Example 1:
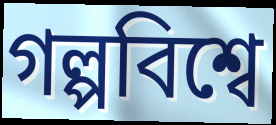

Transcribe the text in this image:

গল্পবিশ্বে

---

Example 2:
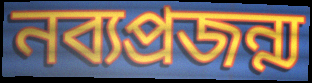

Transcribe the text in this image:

নব্যপ্রজন্ম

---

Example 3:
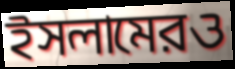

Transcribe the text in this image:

ইসলামেরও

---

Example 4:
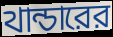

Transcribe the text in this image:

থান্ডারের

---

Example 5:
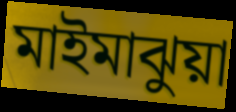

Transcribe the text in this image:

মাইমাঝুয়া